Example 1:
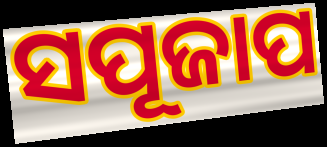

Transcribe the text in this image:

ସପୂଜାପ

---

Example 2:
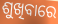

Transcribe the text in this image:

ଶୁଖିବାରେ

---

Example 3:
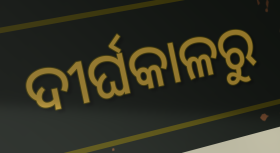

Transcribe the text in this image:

ଦୀର୍ଘକାଳରୁ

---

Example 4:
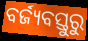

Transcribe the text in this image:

ବର୍ଜ୍ୟବସ୍ତୁରୁ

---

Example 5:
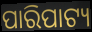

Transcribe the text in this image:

ପାରିପାଟ୍ୟ